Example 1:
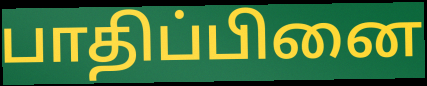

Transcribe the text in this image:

பாதிப்பினை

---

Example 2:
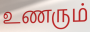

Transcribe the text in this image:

உணரும்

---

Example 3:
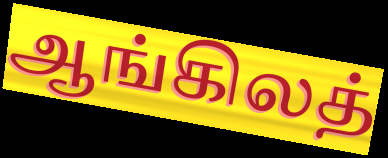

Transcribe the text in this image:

ஆங்கிலத்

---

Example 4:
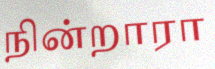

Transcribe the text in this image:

நின்றாரா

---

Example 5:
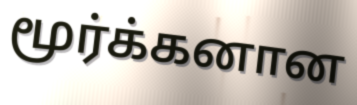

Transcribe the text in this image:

மூர்க்கனான